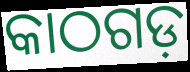
କାଠଗଡ଼